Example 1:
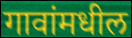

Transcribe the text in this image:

गावांमधील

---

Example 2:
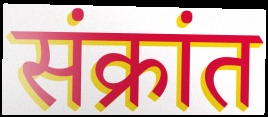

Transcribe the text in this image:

संक्रांत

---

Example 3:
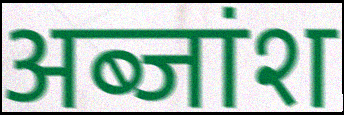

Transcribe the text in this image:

अब्जांश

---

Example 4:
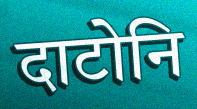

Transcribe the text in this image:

दाटोनि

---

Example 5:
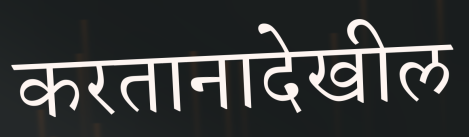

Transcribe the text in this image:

करतानादेखील